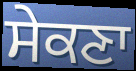
ਸੇਕਣਾ